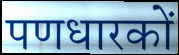
पणधारकों